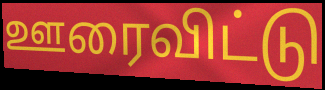
ஊரைவிட்டு